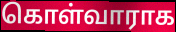
கொள்வாராக